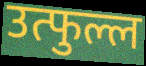
उत्फुल्ल